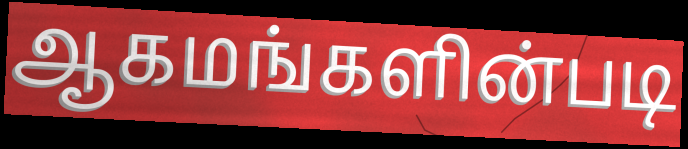
ஆகமங்களின்படி